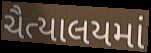
ચૈત્યાલયમાં